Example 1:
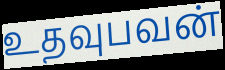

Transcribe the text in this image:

உதவுபவன்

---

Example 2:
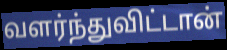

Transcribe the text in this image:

வளர்ந்துவிட்டான்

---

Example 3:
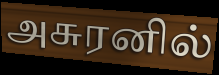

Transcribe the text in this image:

அசுரனில்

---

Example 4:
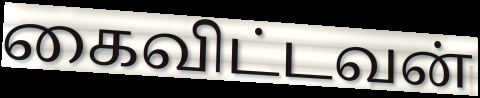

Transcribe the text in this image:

கைவிட்டவன்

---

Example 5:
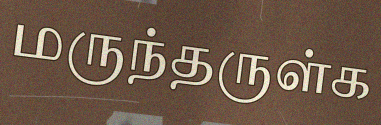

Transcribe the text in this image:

மருந்தருள்க